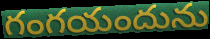
గంగయందును